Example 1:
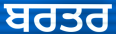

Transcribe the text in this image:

ਬਰਤਰ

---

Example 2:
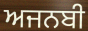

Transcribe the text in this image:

ਅਜਨਬੀ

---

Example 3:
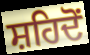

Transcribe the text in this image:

ਸ਼ਹਿਦੋਂ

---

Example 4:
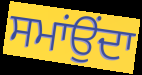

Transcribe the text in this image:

ਸਮਾਂਉਂਦਾ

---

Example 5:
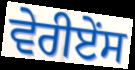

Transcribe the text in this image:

ਵੇਰੀਏਂਸ